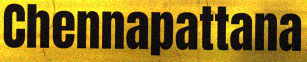
Chennapattana